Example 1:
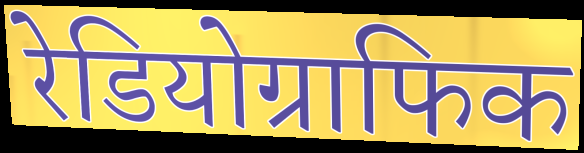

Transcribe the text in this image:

रेडियोग्राफिक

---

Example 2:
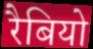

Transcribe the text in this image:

रैबियो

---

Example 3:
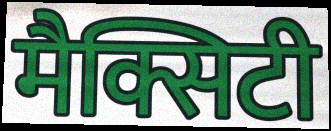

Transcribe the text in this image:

मैक्सिटी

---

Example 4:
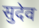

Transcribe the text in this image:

सुदेव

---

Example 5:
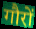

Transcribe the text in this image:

गौरों